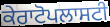
ਕੇਰਾਟੋਪਲਾਸਟੀ